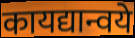
कायद्यान्वये